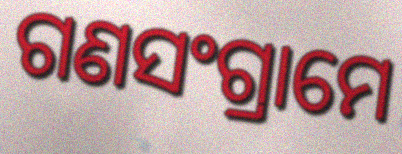
ଗଣସଂଗ୍ରାମେ